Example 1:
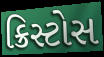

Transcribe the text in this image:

ક્રિસ્ટોસ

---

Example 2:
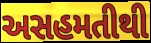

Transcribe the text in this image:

અસહમતીથી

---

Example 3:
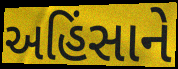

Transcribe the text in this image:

અહિંસાને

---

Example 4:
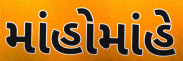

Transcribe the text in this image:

માંહોમાંહે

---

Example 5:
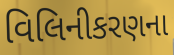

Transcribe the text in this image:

વિલિનીકરણના